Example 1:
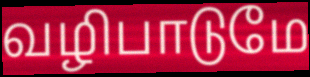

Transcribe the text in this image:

வழிபாடுமே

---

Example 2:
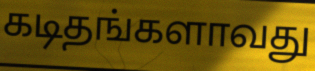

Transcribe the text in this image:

கடிதங்களாவது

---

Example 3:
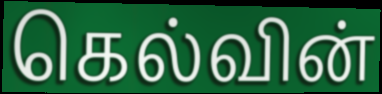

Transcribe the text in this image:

கெல்வின்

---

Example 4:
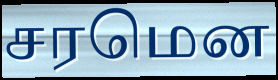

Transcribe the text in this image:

சரமென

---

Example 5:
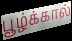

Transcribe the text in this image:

பூழ்க்கால்